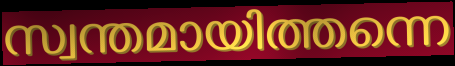
സ്വന്തമായിത്തന്നെ